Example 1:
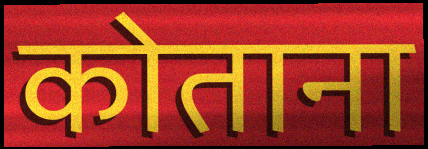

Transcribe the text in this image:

कोताना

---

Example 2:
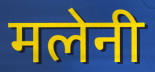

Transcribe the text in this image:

मलेनी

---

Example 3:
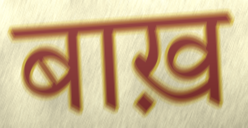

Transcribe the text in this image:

बाख़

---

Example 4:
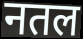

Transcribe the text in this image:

नतल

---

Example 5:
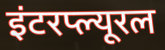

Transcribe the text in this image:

इंटरप्ल्यूरल